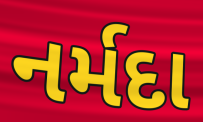
નર્મદા